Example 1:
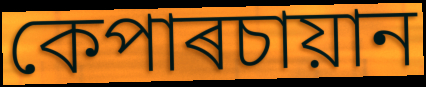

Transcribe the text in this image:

কেপাৰচায়ান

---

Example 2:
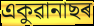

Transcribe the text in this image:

একুৱানাছৰ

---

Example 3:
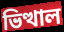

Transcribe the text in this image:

ভিত্থাল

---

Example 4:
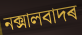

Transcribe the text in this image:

নক্সালবাদৰ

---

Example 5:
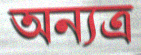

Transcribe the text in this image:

অন্যত্ৰ